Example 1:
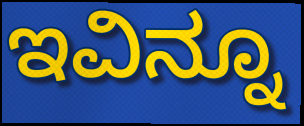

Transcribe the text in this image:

ಇವಿನ್ನೂ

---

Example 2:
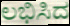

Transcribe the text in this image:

ಲಭಿಸಿದ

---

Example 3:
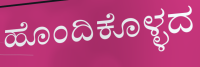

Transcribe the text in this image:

ಹೊಂದಿಕೊಳ್ಳದ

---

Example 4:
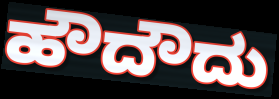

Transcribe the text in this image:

ಹೌದೌದು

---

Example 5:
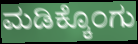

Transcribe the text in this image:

ಮಡಿಕ್ಕೊಂಗು